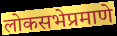
लोकसभेप्रमाणे